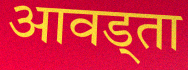
आवड्ता